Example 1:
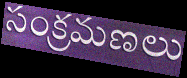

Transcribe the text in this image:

సంక్రమణలు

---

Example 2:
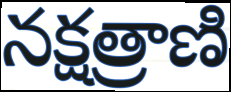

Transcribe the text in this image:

నక్షత్రాణి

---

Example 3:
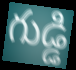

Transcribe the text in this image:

గుడ్డి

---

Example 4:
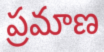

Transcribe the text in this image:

ప్రమాణ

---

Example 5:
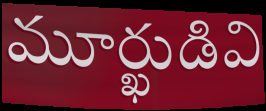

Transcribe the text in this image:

మూర్ఖుడివి